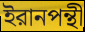
ইরানপন্থী